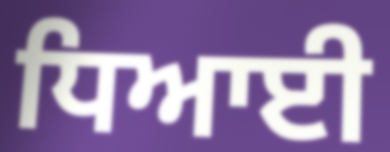
ਧਿਆਈ